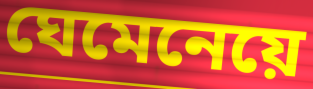
ঘেমেনেয়ে